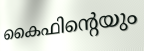
കൈഫിന്റെയും